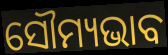
ସୌମ୍ୟଭାବ